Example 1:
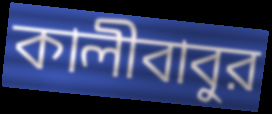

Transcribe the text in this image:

কালীবাবুর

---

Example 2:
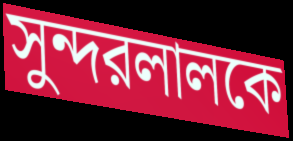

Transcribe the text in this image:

সুন্দরলালকে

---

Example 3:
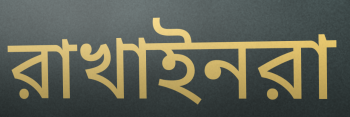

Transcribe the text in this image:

রাখাইনরা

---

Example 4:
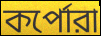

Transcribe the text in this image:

কর্পোরা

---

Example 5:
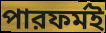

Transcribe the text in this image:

পারফর্মই